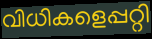
വിധികളെപ്പറ്റി